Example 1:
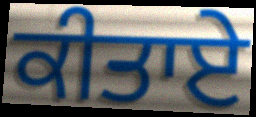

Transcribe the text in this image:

ਕੀਤਾਏ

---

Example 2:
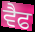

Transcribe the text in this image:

ਵੈਫ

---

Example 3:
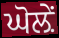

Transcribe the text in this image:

ਘੋਲ਼ੇਂ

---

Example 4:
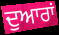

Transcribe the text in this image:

ਦੁਆਰਾਂ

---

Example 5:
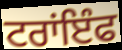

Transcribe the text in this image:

ਟਰਾਂਇੰਫ